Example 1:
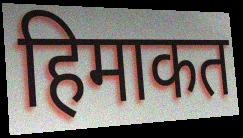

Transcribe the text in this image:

हिमाकत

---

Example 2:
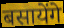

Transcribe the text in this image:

बसायेंगे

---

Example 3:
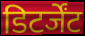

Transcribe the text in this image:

डिटर्जेंट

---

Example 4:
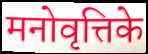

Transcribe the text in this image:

मनोवृत्तिके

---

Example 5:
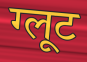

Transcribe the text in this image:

ग्लूट